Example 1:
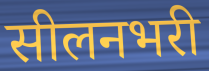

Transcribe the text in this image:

सीलनभरी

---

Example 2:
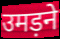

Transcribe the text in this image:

उमड़ने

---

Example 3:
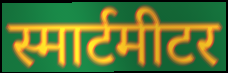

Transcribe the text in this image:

स्मार्टमीटर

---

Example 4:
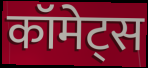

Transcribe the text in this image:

कॉमेट्स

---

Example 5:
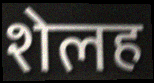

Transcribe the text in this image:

शेलह